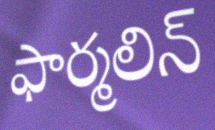
ఫార్మలిన్